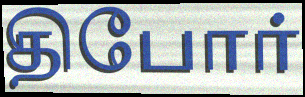
திபோர்